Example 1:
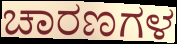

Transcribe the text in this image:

ಚಾರಣಗಳ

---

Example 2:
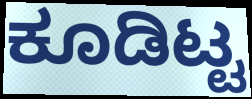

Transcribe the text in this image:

ಕೂಡಿಟ್ಟ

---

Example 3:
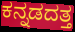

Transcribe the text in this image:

ಕನ್ನಡದತ್ತ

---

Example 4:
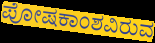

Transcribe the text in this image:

ಪೋಷಕಾಂಶವಿರುವ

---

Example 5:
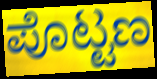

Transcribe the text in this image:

ಪೊಟ್ಟಣ